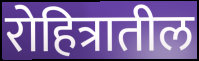
रोहित्रातील